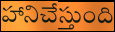
హానిచేస్తుంది